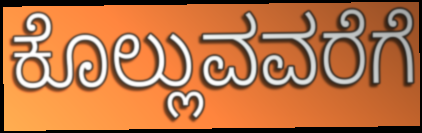
ಕೊಲ್ಲುವವರೆಗೆ